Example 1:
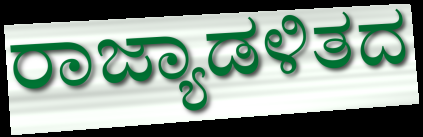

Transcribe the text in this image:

ರಾಜ್ಯಾಡಳಿತದ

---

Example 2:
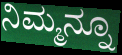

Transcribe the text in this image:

ನಿಮ್ಮನ್ನೂ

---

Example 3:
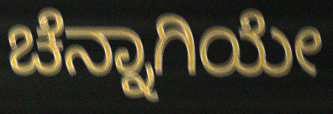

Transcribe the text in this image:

ಚೆನ್ನಾಗಿಯೇ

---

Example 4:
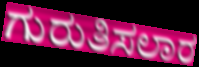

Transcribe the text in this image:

ಗುರುತಿಸಲಾರ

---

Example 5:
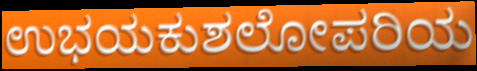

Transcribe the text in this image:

ಉಭಯಕುಶಲೋಪರಿಯ